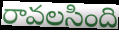
రావలసింది